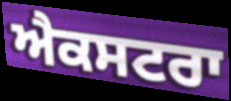
ਐਕਸਟਰਾ